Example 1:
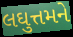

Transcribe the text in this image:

લઘુત્તમને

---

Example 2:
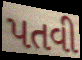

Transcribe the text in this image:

પતવી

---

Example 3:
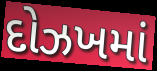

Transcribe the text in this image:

દોઝખમાં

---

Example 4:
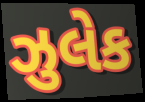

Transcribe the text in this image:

ઝુલેક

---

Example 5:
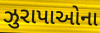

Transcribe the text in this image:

ઝુરાપાઓના